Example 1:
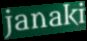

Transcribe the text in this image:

janaki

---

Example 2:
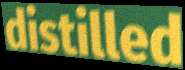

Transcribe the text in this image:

distilled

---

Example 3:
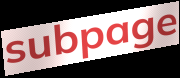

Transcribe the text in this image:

subpage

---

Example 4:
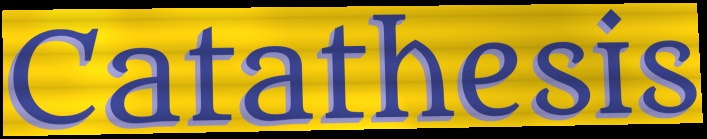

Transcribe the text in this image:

Catathesis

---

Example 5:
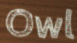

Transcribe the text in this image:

Owl